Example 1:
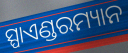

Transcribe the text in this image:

ସ୍ପାଏଣ୍ଡରମ୍ୟାନ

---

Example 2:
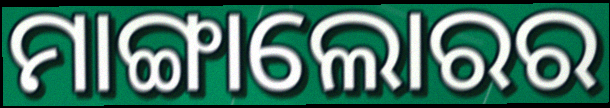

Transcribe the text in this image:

ମାଙ୍ଗାଲୋରର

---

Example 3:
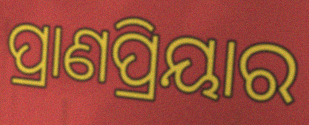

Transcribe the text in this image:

ପ୍ରାଣପ୍ରିୟାର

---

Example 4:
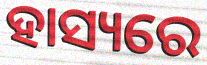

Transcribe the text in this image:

ହାସ୍ୟରେ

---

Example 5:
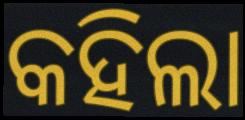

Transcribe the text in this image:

କହିଲା